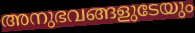
അനുഭവങ്ങളുടേയും